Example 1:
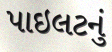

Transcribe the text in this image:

પાઇલટનું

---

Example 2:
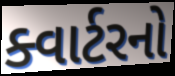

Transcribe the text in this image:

ક્વાર્ટરનો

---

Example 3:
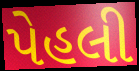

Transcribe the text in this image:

પેહલી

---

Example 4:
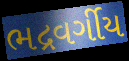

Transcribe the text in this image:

ભદ્રવર્ગીય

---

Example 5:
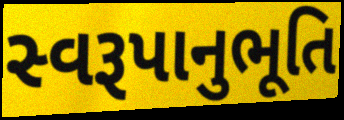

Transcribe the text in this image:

સ્વરૂપાનુભૂતિ